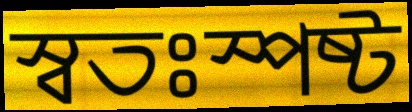
স্বতঃস্পষ্ট